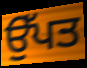
ਉੱਪਤ